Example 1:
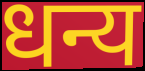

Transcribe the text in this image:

धन्य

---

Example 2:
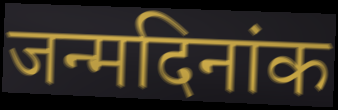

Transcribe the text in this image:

जन्मदिनांक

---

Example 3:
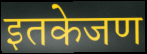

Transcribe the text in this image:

इतकेजण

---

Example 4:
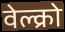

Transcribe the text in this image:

वेल्क्रो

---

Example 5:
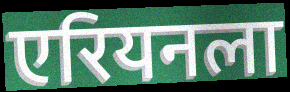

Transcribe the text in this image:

एरियनला